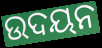
ଉଦୟନ